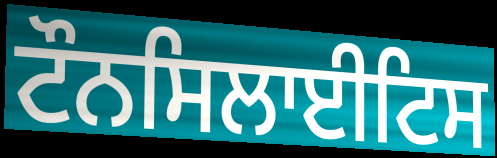
ਟੌਨਸਿਲਾਈਟਿਸ